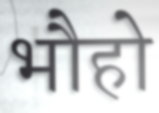
भौहो